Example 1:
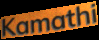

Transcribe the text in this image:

Kamathi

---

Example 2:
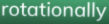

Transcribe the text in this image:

rotationally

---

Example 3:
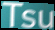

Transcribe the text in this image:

Tsu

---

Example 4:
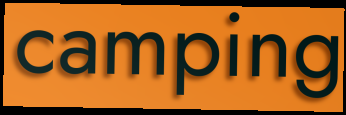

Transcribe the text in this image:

camping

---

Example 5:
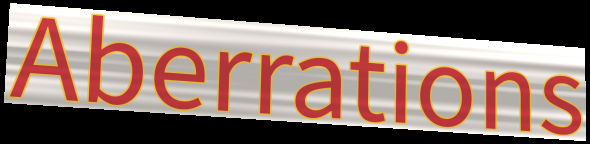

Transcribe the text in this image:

Aberrations